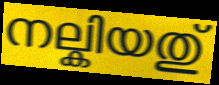
നല്കിയതു്